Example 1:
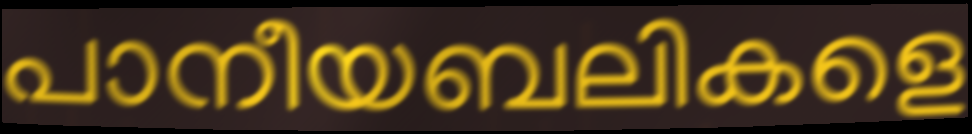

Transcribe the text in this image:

പാനീയബലികളെ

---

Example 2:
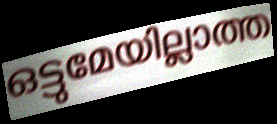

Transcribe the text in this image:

ഒട്ടുമേയില്ലാത്ത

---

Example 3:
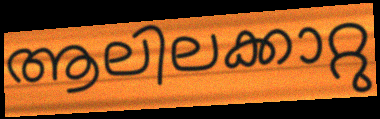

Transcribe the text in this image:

ആലിലക്കാറ്റു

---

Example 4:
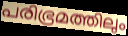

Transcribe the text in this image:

പരിഭ്രമത്തിലും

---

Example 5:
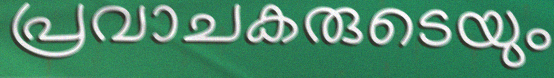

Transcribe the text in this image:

പ്രവാചകരുടെയും